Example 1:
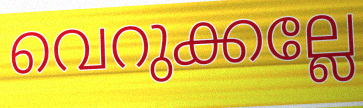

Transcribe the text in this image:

വെറുക്കല്ലേ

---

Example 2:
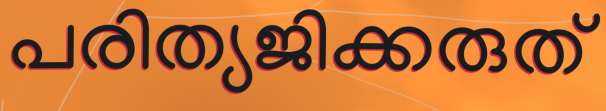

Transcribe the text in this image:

പരിത്യജിക്കരുത്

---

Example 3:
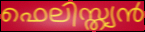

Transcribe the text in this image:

ഫെലിസ്ത്യൻ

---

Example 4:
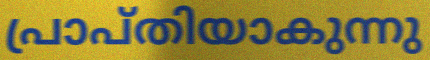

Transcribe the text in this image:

പ്രാപ്തിയാകുന്നു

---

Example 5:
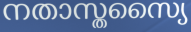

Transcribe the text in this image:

നതാസ്തസ്യൈ